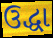
ઉદ્ધા